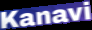
Kanavi